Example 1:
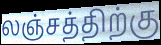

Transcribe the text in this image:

லஞ்சத்திற்கு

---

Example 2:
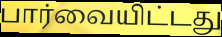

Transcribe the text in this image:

பார்வையிட்டது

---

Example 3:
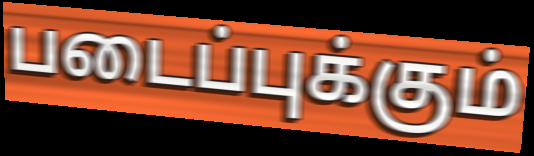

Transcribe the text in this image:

படைப்புக்கும்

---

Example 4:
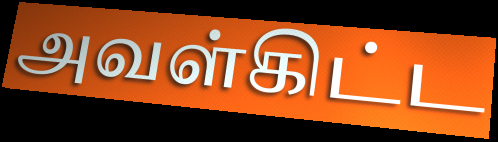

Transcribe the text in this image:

அவள்கிட்ட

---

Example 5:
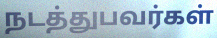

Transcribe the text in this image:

நடத்துபவர்கள்